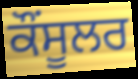
ਕੌਂਸੂਲਰ